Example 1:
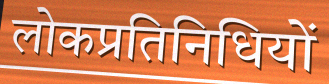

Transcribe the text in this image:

लोकप्रतिनिधियों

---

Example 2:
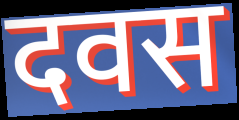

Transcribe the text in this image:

दवस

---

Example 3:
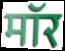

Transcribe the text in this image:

मॉर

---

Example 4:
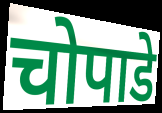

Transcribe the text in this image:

चोपाडे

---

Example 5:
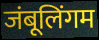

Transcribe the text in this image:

जंबूलिंगम